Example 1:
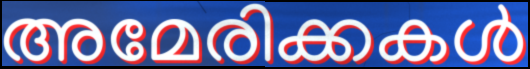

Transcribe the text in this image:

അമേരിക്കകൾ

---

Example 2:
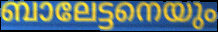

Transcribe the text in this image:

ബാലേട്ടനെയും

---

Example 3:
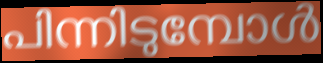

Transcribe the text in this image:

പിന്നിടുമ്പോൾ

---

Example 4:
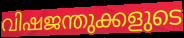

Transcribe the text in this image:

വിഷജന്തുക്കളുടെ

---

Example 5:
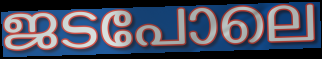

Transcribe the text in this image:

ജടപോലെ